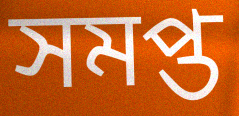
সমপ্ত